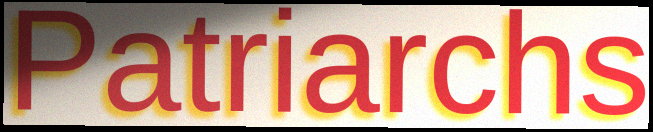
Patriarchs